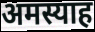
अमस्याह